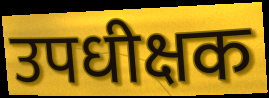
उपधीक्षक